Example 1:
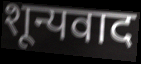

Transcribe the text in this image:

शून्यवाद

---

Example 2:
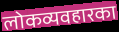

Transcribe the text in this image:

लोकव्यवहारका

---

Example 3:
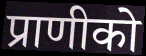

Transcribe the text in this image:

प्राणीको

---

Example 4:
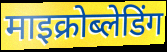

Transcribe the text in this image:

माइक्रोब्लेडिंग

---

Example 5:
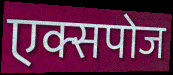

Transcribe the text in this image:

एक्सपोज